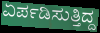
ಏರ್ಪಡಿಸುತ್ತಿದ್ದ